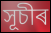
সূচীৰ